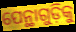
ପେନ୍ଥାଗୁଡ଼ିକୁ